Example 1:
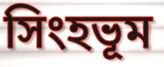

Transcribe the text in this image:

সিংহভূম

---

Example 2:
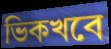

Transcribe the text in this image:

ভিকখবে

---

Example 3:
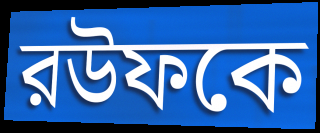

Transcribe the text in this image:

রউফকে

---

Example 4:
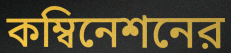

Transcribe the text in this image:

কম্বিনেশনের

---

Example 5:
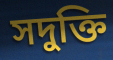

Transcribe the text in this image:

সদুক্তি